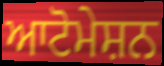
ਆਟੋਮੇਸ਼ਨ